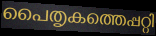
പൈതൃകത്തെപ്പറ്റി